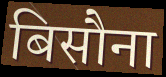
बिसौना